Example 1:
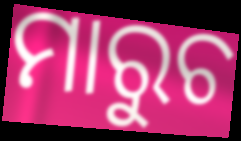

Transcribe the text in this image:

ମାରୁଚ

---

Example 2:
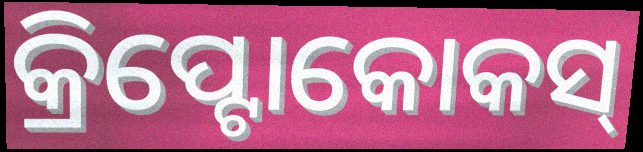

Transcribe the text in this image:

କ୍ରିପ୍ଟୋକୋକସ୍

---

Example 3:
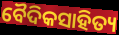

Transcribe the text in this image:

ବୈଦିକସାହିତ୍ୟ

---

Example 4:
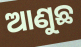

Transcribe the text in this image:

ଆଣୁଛ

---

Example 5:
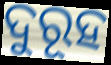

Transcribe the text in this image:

ଦୁରୂହ